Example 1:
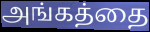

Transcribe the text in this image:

அங்கத்தை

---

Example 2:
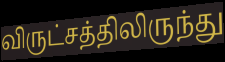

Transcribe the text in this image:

விருட்சத்திலிருந்து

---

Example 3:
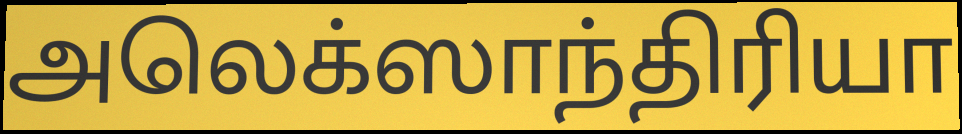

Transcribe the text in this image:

அலெக்ஸாந்திரியா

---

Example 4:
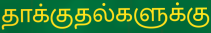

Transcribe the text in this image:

தாக்குதல்களுக்கு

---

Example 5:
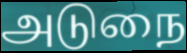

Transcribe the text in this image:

அடுநை